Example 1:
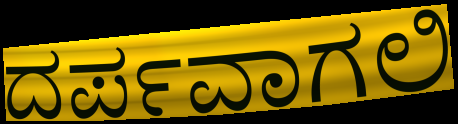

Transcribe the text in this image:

ದರ್ಪವಾಗಲಿ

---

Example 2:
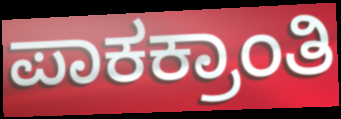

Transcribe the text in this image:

ಪಾಕಕ್ರಾಂತಿ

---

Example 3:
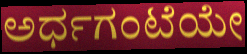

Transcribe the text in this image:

ಅರ್ಧಗಂಟೆಯೇ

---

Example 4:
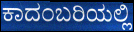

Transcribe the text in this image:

ಕಾದಂಬರಿಯಲ್ಲಿ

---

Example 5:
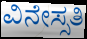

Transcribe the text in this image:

ವಿನೇಸ್ಸತಿ